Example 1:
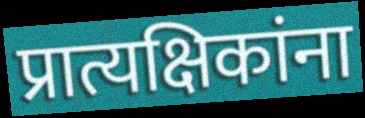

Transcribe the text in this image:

प्रात्यक्षिकांना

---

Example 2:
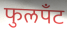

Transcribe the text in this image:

फुलपँट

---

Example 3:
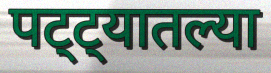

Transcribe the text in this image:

पट्ट्यातल्या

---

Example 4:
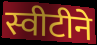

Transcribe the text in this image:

स्वीटीने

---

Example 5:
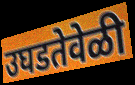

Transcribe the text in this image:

उघडतेवेळी